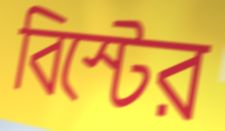
বিস্টের